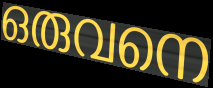
ഒരുവനെ